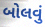
બોલવું